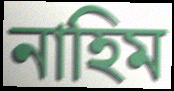
নাহিম